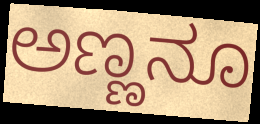
ಅಣ್ಣನೂ